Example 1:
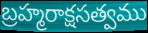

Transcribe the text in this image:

బ్రహ్మరాక్షసత్వము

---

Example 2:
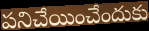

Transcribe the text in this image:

పనిచేయించేందుకు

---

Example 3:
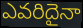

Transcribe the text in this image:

ఎవరిదైనా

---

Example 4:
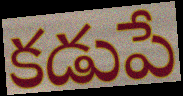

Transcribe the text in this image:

కడుపే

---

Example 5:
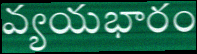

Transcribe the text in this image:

వ్యయభారం